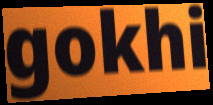
gokhi